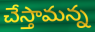
చేస్తామన్న